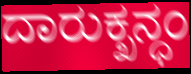
ದಾರುಕ್ಖನ್ಧಂ